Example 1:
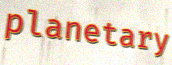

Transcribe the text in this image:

planetary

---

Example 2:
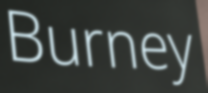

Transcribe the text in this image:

Burney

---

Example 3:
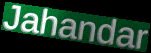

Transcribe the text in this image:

Jahandar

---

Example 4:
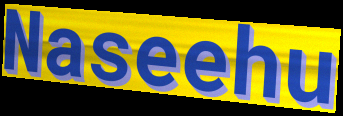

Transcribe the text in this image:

Naseehu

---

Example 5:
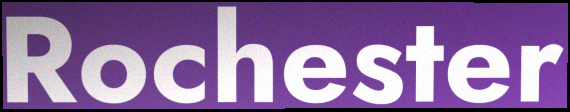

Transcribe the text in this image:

Rochester